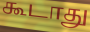
கூடாது